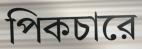
পিকচারে